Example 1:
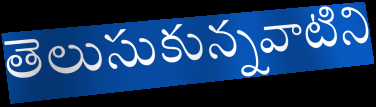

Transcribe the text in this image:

తెలుసుకున్నవాటిని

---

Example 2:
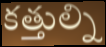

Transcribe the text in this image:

కత్తుల్ని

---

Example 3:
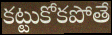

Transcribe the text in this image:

కట్టుకోకపోతే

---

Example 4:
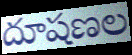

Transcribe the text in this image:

దూషణల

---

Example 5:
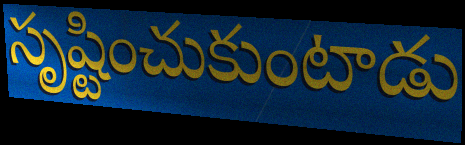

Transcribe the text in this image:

సృష్టించుకుంటాడు